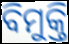
ବିମୁକ୍ତି